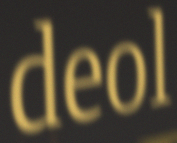
deol